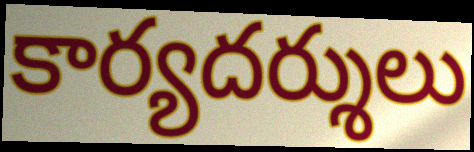
కార్యదర్శులు